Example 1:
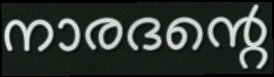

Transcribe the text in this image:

നാരദന്റെ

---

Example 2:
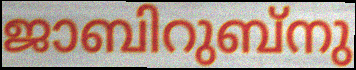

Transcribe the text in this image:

ജാബിറുബ്നു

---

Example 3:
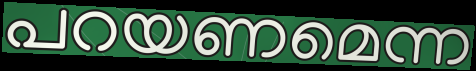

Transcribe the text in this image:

പറയണമെന്ന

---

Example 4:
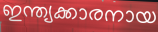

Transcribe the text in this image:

ഇന്ത്യക്കാരനായ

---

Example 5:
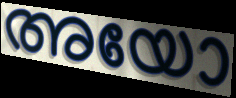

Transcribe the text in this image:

അയോ